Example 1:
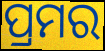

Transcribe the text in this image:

ପ୍ରମର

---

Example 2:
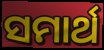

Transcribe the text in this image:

ସମାର୍ଥ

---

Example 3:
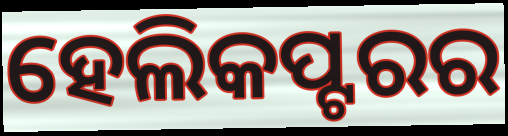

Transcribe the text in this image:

ହେଲିକପ୍ଟରର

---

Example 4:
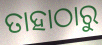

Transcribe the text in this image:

ତାହାଠାରୁ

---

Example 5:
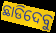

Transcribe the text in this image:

ଛାଡିଦେବୁ